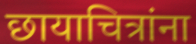
छायाचित्रांना